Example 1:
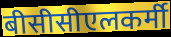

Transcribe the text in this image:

बीसीसीएलकर्मी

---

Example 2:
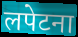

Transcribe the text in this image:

लपेटना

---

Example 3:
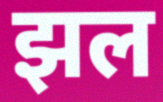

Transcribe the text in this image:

झल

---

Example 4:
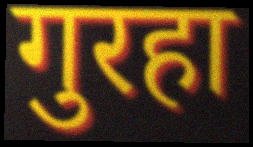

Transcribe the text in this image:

गुरहा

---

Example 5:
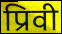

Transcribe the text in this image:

प्रिवी